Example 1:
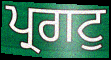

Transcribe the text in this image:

ਪ੍ਰਗਟੁ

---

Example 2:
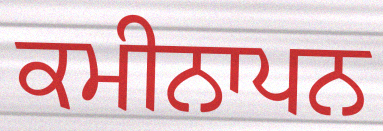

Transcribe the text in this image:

ਕਮੀਨਾਪਨ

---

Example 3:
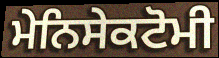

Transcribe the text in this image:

ਮੇਨਿਸੇਕਟੋਮੀ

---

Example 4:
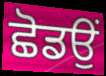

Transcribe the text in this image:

ਛੋਡਉਂ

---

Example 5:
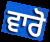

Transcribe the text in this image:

ਵਾਰੋ